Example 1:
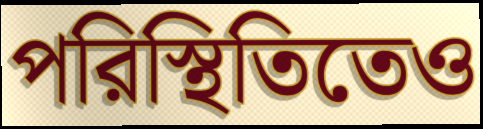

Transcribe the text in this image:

পরিস্থিতিতেও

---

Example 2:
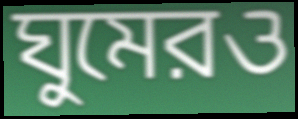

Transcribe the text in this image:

ঘুমেরও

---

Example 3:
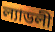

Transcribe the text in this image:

ল্যাডলী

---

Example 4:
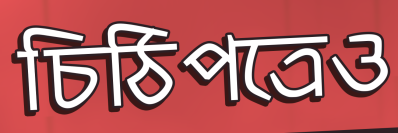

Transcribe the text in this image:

চিঠিপত্রেও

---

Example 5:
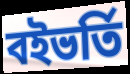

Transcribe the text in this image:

বইভর্তি